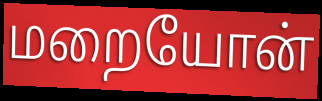
மறையோன்